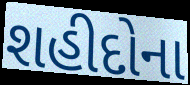
શહીદોના